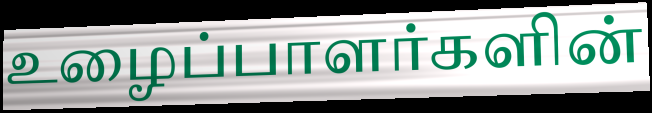
உழைப்பாளர்களின்